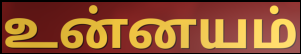
உன்னயம்